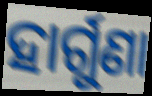
ହାର୍ଗୁଣା